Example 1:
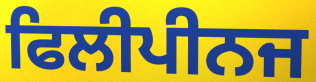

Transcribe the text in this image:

ਫਿਲੀਪੀਨਜ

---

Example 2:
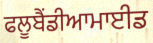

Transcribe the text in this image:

ਫਲੂਬੈਂਡੀਆਮਾਈਡ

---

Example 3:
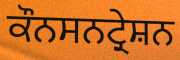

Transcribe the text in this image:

ਕੌਨਸਨਟ੍ਰੇਸ਼ਨ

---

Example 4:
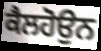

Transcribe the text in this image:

ਕੈਲਹੋਉਨ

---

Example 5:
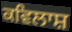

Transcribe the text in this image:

ਕਵਿਲਾਸ਼